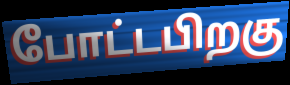
போட்டபிறகு